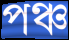
পঞ্চ